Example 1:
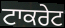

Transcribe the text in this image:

ਟਾਕਰੇਟ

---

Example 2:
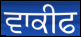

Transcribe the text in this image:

ਵਾਕੀਫ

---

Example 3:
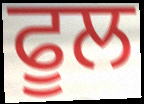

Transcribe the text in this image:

ਫੂਲ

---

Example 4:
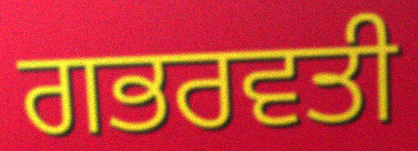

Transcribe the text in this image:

ਗਭਰਵਤੀ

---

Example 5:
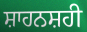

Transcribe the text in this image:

ਸ਼ਾਹਨਸ਼ਹੀ